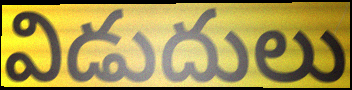
విడుదులు